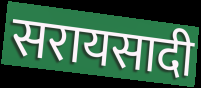
सरायसादी